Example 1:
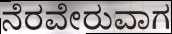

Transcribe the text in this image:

ನೆರವೇರುವಾಗ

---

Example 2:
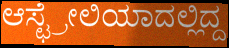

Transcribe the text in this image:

ಆಸ್ಟ್ರೇಲಿಯಾದಲ್ಲಿದ್ದ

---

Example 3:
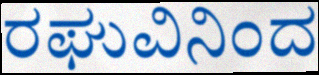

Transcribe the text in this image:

ರಘುವಿನಿಂದ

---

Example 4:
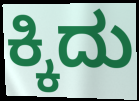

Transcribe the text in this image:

ಕ್ಕಿದು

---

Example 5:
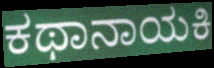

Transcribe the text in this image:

ಕಥಾನಾಯಕಿ